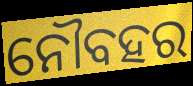
ନୌବହର